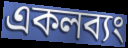
একলব্যং